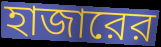
হাজারের